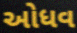
ઓધવ